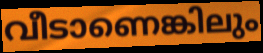
വീടാണെങ്കിലും